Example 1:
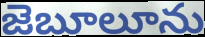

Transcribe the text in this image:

జెబూలూను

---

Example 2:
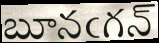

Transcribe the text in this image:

బూనఁగన్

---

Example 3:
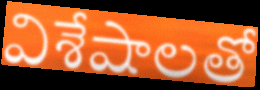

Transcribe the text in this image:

విశేషాలతో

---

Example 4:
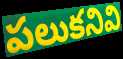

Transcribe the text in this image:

పలుకనివి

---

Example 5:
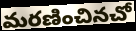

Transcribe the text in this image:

మరణించినచో